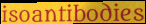
isoantibodies